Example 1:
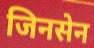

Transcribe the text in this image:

जिनसेन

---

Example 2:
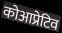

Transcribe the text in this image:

कोआप्रेटिव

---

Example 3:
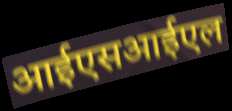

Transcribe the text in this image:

आईएसआईएल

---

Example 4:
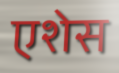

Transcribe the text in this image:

एशेस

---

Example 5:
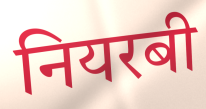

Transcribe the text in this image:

नियरबी